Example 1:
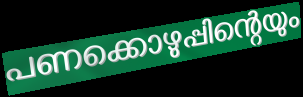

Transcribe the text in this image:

പണക്കൊഴുപ്പിന്റെയും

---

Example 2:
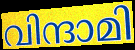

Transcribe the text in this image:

വിന്ദാമി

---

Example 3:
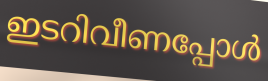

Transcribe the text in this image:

ഇടറിവീണപ്പോൾ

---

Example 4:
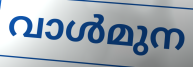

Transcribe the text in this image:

വാൾമുന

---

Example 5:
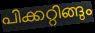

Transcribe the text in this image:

പിക്കറ്റിങ്ങും